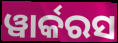
ୱାର୍କରସ